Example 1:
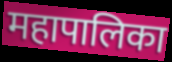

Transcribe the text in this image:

महापालिका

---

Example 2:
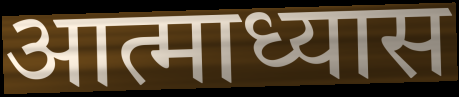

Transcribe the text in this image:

आत्माध्यास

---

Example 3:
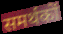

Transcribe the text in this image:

समर्थकों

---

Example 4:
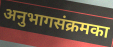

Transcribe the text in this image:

अनुभागसंक्रमका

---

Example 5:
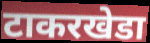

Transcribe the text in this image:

टाकरखेडा